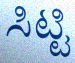
ಸಿಟ್ಟಿ